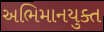
અભિમાનયુક્ત